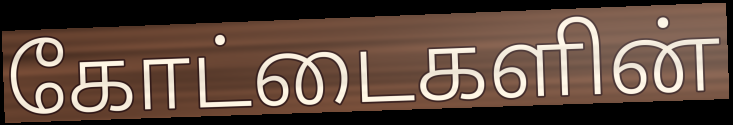
கோட்டைகளின்